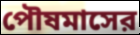
পৌষমাসের